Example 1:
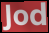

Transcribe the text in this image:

Jod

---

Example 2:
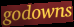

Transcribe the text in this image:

godowns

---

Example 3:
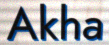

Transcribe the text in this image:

Akha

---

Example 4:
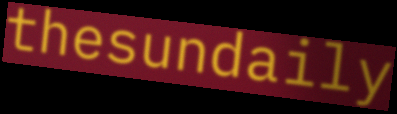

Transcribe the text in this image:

thesundaily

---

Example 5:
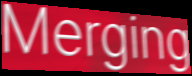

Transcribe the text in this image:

Merging